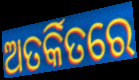
ଅତର୍କିତରେ